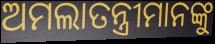
ଅମଲାତନ୍ତ୍ରୀମାନଙ୍କୁ